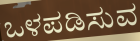
ಒಳಪಡಿಸುವ